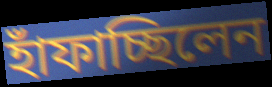
হাঁফাচ্ছিলেন